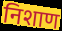
निशाण